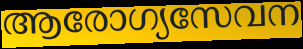
ആരോഗ്യസേവന